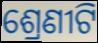
ଶ୍ରେଣୀଟି